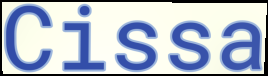
Cissa